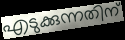
എടുക്കുന്നതിന്